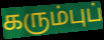
கரும்புப்